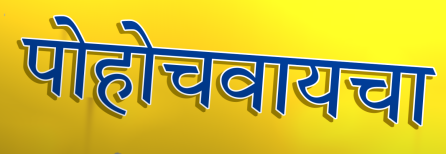
पोहोचवायचा